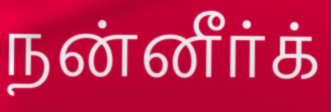
நன்னீர்க்